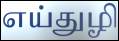
எய்துழி